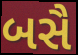
બસૈ